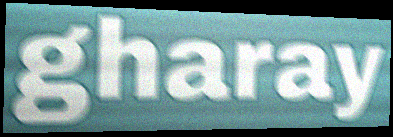
gharay